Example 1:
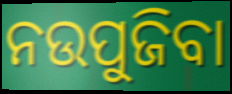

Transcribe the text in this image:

ନଉପୁଜିବା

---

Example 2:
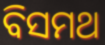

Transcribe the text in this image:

ବିସମଥ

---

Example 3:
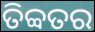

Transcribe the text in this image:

ତିବ୍ବତର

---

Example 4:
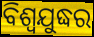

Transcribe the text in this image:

ବିଶ୍ୱଯୁଦ୍ଧର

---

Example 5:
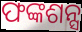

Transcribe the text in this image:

ଫଙ୍କଶନ୍ସ